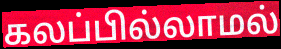
கலப்பில்லாமல்